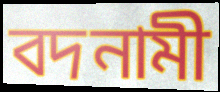
বদনামী